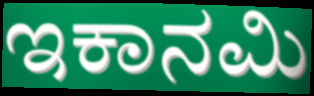
ಇಕಾನಮಿ